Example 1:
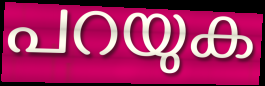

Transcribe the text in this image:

പറയുക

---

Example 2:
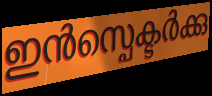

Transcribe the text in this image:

ഇൻസ്പെക്ടർക്കു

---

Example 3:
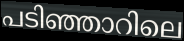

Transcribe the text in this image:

പടിഞ്ഞാറിലെ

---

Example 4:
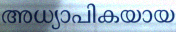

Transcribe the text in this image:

അധ്യാപികയായ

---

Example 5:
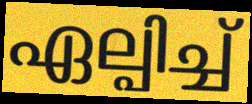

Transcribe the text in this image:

ഏല്പിച്ച്